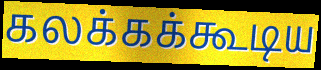
கலக்கக்கூடிய